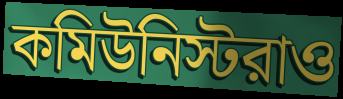
কমিউনিস্টরাও